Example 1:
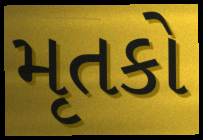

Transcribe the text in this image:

મૃતકો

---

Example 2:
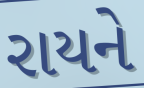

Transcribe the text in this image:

રાયને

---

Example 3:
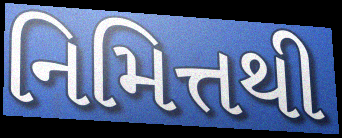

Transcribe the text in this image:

નિમિત્તથી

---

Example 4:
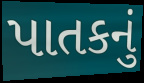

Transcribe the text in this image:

પાતકનું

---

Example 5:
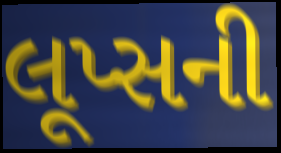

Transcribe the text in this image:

લૂપ્સની